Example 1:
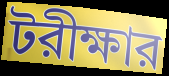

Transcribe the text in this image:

টরীক্ষার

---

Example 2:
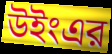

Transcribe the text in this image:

উইংএর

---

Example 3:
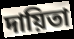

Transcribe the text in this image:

দায়িতা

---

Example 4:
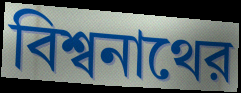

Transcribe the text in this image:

বিশ্বনাথের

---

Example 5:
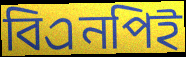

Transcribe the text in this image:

বিএনপিই